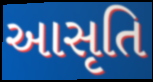
આસૃતિ